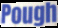
Pough